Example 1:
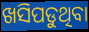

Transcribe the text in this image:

ଖସିପଡୁଥିବା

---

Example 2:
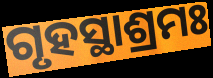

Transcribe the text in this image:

ଗୃହସ୍ଥାଶ୍ରମଃ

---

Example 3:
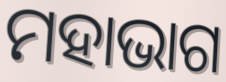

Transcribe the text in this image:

ମହାଭାଗ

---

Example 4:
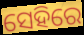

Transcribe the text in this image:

ସେହିରେ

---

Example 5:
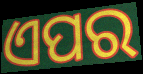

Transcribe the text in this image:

ଏପର